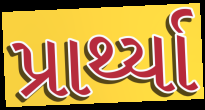
પ્રાર્થ્યા